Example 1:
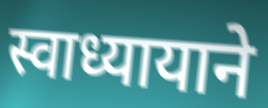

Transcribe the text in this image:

स्वाध्यायाने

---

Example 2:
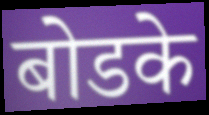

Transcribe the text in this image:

बोडके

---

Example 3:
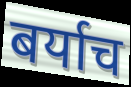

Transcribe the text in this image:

बर्याच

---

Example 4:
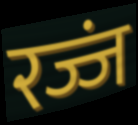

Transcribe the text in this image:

रज्जं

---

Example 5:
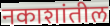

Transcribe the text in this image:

नकाशांतील